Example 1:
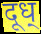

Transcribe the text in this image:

दूध्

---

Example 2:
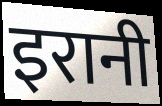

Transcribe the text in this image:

इरानी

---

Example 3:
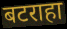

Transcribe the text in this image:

बटराहा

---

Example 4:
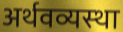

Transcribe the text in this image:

अर्थवव्यस्था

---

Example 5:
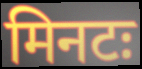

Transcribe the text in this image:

मिनटः